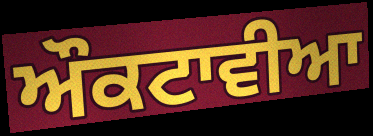
ਔਕਟਾਵੀਆ